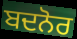
ਬਦਨੋਰ